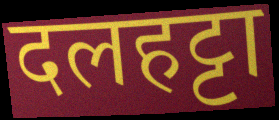
दलहट्टा